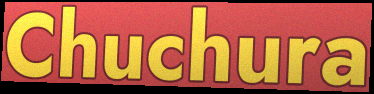
Chuchura